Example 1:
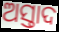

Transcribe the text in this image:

ଅସ୍ତାଦ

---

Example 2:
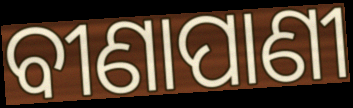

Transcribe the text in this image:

ବୀଣାପାଣୀ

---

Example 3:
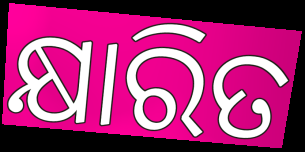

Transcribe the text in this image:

କ୍ଷାରିତ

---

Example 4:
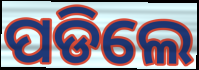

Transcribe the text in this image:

ପଡିଲେ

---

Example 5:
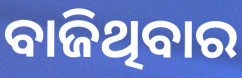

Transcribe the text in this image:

ବାଜିଥିବାର